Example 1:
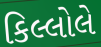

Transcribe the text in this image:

કિલ્લોલે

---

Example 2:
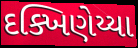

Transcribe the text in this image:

દક્ખિણેય્યા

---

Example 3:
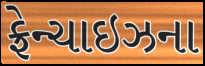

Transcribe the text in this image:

ફ્રેન્ચાઇઝના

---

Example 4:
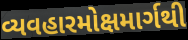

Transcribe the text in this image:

વ્યવહારમોક્ષમાર્ગથી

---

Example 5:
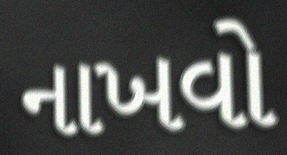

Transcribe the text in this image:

નાખવો